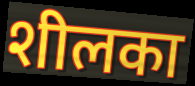
शीलका